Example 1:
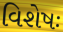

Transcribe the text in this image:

વિશેષઃ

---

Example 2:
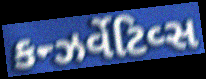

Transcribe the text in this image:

કન્ઝર્વેટિવ્સ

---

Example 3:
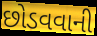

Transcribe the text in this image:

છોડવવાની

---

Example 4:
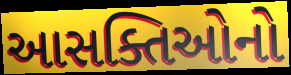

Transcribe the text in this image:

આસક્તિઓનો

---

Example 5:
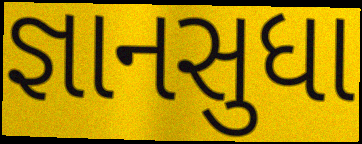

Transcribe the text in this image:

જ્ઞાનસુધા